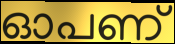
ഓപണ്